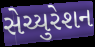
સેચ્યુરેશન